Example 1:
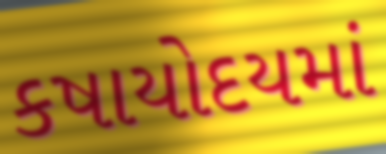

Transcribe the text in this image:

કષાયોદયમાં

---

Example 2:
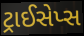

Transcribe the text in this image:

ટ્રાઈસેપ્સ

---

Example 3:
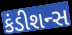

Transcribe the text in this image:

કંડીશન્સ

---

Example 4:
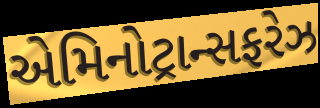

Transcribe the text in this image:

એમિનોટ્રાન્સફરેઝ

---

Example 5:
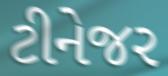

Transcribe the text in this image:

ટીનેજર